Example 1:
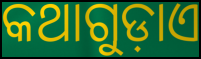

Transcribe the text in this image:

କଥାଗୁଡ଼ାଏ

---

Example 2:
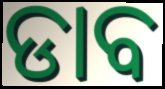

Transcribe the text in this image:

ଡାବ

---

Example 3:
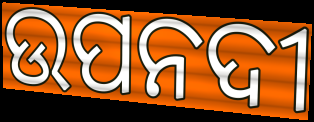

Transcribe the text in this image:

ଉପନଦୀ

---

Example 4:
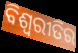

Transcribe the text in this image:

ବିଶ୍ଵରୀତିର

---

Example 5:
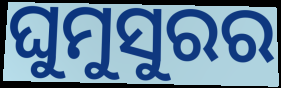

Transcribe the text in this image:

ଘୁମୁସୁରର